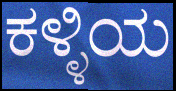
ಕಳ್ಳಿಯ